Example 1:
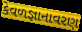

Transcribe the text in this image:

કેવળજ્ઞાનાવરણ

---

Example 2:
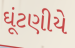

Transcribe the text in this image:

ઘૂંટણીયે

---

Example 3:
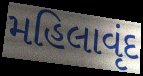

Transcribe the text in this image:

મહિલાવૃંદ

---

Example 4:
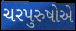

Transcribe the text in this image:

ચરપુરુષોએ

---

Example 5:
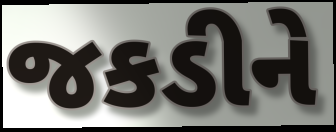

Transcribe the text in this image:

જકડીને